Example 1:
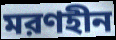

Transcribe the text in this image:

মরণহীন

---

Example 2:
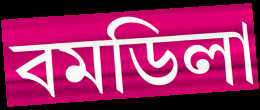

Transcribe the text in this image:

বমডিলা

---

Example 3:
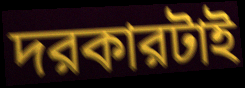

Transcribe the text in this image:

দরকারটাই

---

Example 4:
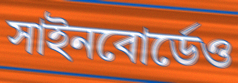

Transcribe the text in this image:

সাইনবোর্ডেও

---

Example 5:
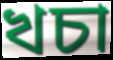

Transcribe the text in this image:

খচা